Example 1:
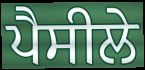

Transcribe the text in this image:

ਪੈਸੀਲੇ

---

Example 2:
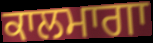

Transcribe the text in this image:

ਕਾਲਮਾਗਾ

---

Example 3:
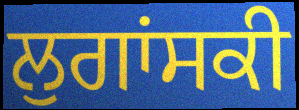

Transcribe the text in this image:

ਲੁਗਾਂਸਕੀ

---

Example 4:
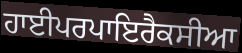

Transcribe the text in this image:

ਹਾਈਪਰਪਾਇਰੈਕਸੀਆ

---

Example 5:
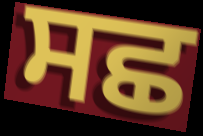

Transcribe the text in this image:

ਸਛ